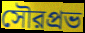
সৌরপ্রভ